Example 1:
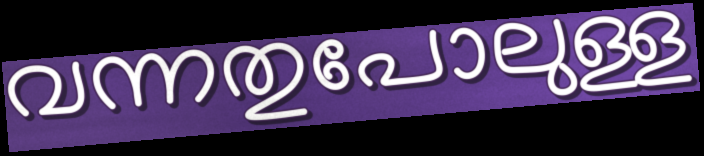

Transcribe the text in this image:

വന്നതുപോലുള്ള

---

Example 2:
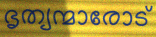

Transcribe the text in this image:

ഭൃത്യന്മാരോട്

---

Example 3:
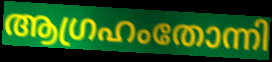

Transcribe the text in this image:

ആഗ്രഹംതോന്നി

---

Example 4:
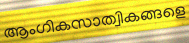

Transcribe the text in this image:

ആംഗികസാത്വികങ്ങളെ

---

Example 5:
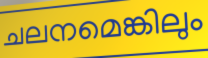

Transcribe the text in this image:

ചലനമെങ്കിലും